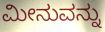
ಮೀನುವನ್ನು